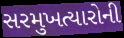
સરમુખત્યારોની